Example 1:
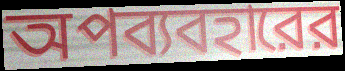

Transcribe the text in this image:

অপব্যবহারের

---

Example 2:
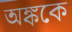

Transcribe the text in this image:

অঙ্ককে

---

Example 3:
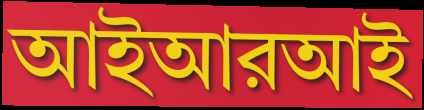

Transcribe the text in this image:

আইআরআই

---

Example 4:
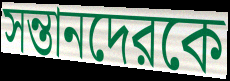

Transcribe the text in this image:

সন্তানদেরকে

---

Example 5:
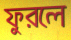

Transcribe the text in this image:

ফুরলে